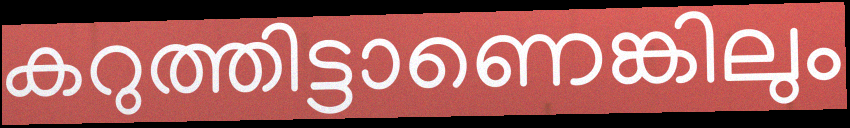
കറുത്തിട്ടാണെങ്കിലും